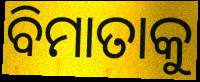
ବିମାତାକୁ